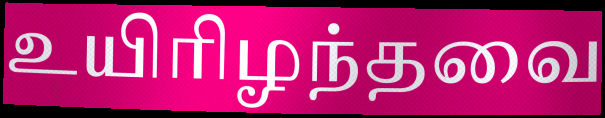
உயிரிழந்தவை